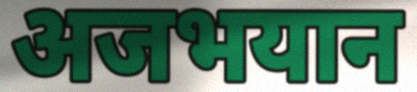
अजभयान